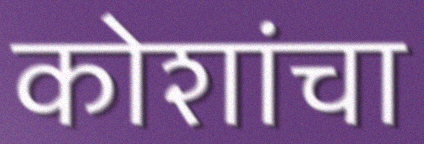
कोशांचा